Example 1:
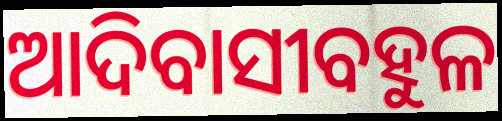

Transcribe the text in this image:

ଆଦିବାସୀବହୁଳ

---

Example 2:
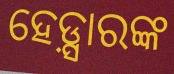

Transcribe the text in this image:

ହେଡ଼୍ସାରଙ୍କ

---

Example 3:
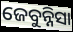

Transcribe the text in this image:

ଜେବୁନ୍ନିସା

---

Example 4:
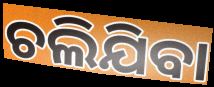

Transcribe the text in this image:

ଚଲିଯିବା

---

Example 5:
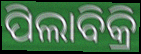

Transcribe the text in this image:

ପିଲାବିକ୍ରି